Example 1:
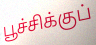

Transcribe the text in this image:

பூச்சிக்குப்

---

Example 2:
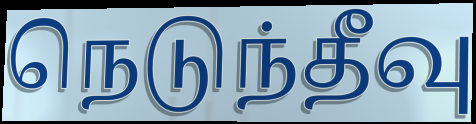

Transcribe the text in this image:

நெடுந்தீவு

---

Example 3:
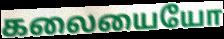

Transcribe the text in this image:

கலையையோ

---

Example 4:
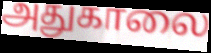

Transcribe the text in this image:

அதுகாலை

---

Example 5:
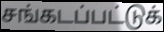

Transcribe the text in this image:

சங்கடப்பட்டுக்